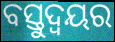
ବସ୍ତୁଦ୍ୱୟର